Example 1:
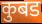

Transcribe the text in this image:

कुबड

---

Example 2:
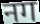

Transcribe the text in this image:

नग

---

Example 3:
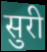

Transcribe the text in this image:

सुरी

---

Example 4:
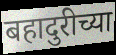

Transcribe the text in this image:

बहादुरीच्या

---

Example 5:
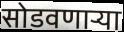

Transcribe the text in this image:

सोडवणाऱ्या